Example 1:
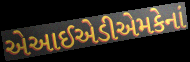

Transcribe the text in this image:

એઆઈએડીએમકેનાં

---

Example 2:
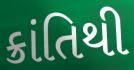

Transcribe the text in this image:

ક્રાંતિથી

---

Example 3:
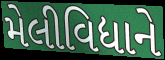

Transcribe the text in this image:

મેલીવિદ્યાને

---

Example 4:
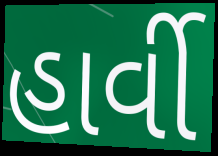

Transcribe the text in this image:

હાર્વી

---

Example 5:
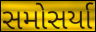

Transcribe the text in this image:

સમોસર્યા